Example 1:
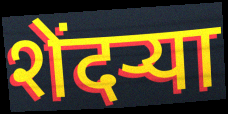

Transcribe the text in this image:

शेंदर्‍या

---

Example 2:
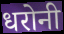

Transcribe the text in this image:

धरोनी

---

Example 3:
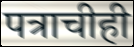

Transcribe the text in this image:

पत्राचीही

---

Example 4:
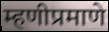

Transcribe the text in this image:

म्हणीप्रमाणे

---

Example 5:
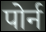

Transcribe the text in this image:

पोर्न